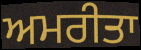
ਅਮਰੀਤਾ